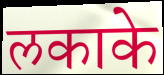
लकाके